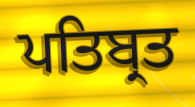
ਪਤਿਬ੍ਰਤ